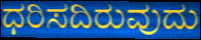
ಧರಿಸದಿರುವುದು